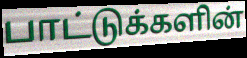
பாட்டுக்களின்